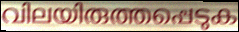
വിലയിരുത്തപ്പെടുക